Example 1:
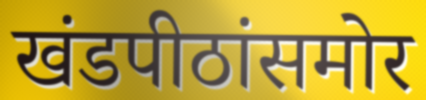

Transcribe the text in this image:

खंडपीठांसमोर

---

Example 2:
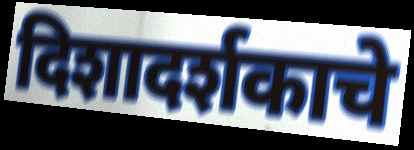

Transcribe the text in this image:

दिशादर्शकाचे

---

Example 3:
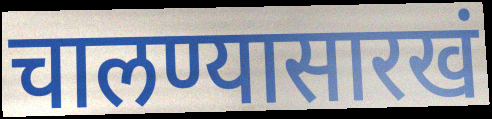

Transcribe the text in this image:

चालण्यासारखं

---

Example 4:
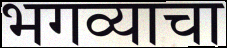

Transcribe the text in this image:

भगव्याचा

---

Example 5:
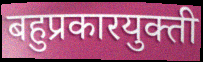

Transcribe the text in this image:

बहुप्रकारयुक्ती